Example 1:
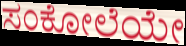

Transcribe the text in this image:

ಸಂಕೋಲೆಯೇ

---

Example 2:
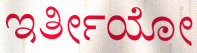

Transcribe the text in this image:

ಇರ್ತೀಯೋ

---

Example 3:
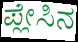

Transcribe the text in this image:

ಪ್ಲೇಸಿನ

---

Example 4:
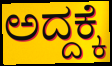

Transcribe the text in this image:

ಅದ್ದಕ್ಕೆ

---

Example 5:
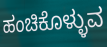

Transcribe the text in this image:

ಹಂಚಿಕೊಳ್ಳುವ